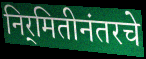
निर्मितीनंतरचे